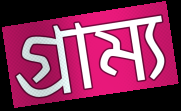
গ্রাম্য